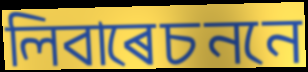
লিবাৰেচননে